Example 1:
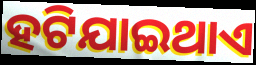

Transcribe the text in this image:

ହଟିଯାଇଥାଏ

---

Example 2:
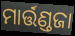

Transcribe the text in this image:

ମାର୍ତ୍ତଣ୍ଡଜା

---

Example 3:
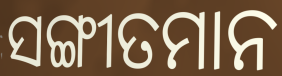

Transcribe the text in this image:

ସଙ୍ଗୀତମାନ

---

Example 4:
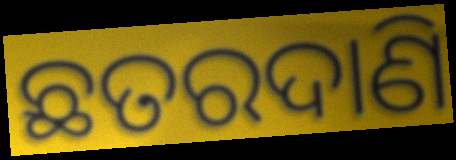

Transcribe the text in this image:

ଛତରଦାଣି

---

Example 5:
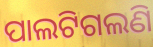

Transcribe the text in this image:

ପାଲଟିଗଲଣି